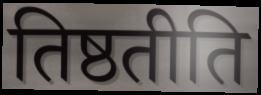
तिष्ठतीति